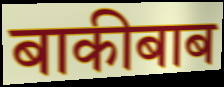
बाकीबाब